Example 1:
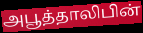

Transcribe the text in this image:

அபூத்தாலிபின்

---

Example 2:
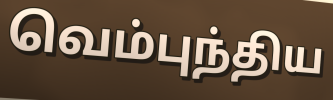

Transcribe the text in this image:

வெம்புந்திய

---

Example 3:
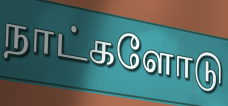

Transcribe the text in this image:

நாட்களோடு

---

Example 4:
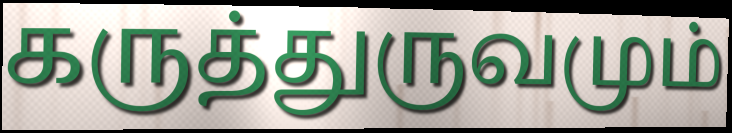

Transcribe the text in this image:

கருத்துருவமும்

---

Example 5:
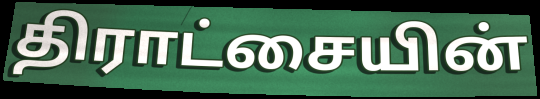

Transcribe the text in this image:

திராட்சையின்